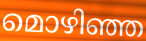
മൊഴിഞ്ഞ